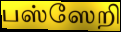
பஸ்ஸேறி